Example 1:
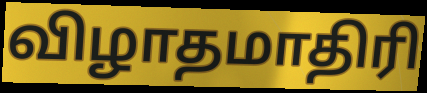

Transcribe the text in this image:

விழாதமாதிரி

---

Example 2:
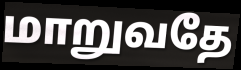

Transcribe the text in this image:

மாறுவதே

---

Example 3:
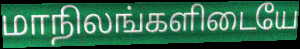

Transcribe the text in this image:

மாநிலங்களிடையே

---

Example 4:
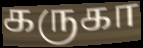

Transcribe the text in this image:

கருகா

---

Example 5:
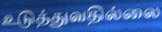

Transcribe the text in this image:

உடுத்துவதில்லை